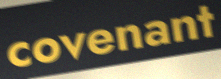
covenant